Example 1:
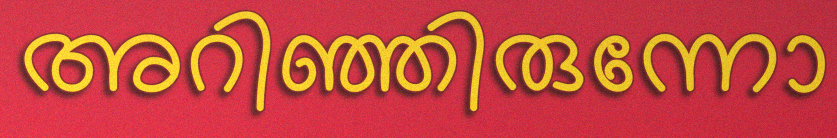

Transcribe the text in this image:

അറിഞ്ഞിരുന്നോ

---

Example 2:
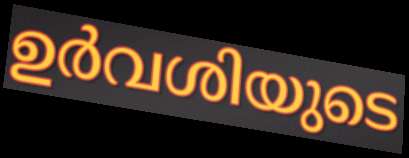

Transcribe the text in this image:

ഉർവശിയുടെ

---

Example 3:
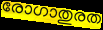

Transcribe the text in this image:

രോഗാതുരത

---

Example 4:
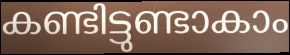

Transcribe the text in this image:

കണ്ടിട്ടുണ്ടാകാം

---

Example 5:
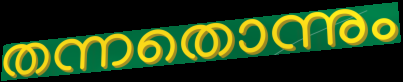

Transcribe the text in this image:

തന്നതൊന്നും